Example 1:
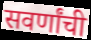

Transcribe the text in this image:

सवर्णांची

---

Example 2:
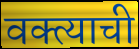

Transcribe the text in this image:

वक्त्याची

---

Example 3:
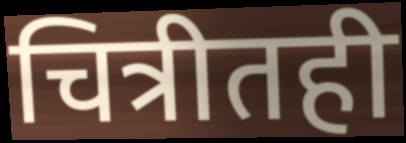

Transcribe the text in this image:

चित्रीतही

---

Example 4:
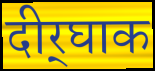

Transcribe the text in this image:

दीर्घाक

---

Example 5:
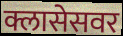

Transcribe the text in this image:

क्लासेसवर